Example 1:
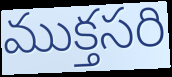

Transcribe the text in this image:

ముక్తసరి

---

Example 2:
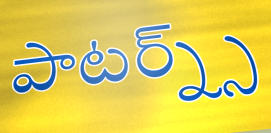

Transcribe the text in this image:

పాటర్న్స్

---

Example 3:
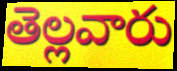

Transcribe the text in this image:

తెల్లవారు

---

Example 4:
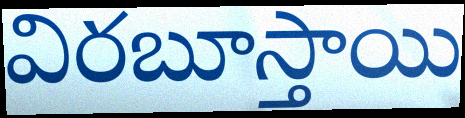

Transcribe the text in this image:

విరబూస్తాయి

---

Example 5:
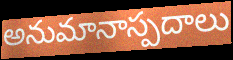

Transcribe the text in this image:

అనుమానాస్పదాలు